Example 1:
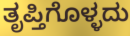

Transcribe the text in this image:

ತೃಪ್ತಿಗೊಳ್ಳದು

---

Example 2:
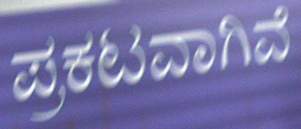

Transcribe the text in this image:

ಪ್ರಕಟವಾಗಿವೆ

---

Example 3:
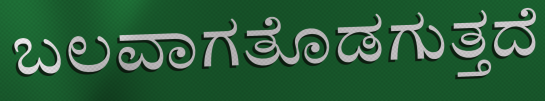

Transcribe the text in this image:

ಬಲವಾಗತೊಡಗುತ್ತದೆ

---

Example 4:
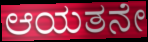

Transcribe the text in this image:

ಆಯತನೇ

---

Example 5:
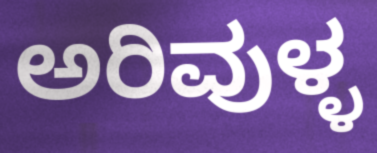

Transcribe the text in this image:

ಅರಿವುಳ್ಳ